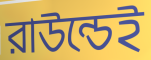
রাউন্ডেই